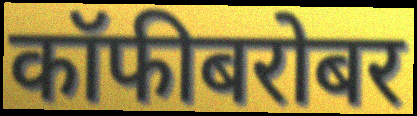
कॉफीबरोबर